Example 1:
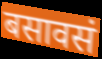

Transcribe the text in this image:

बसावसं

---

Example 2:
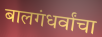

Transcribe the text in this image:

बालगंधर्वांचा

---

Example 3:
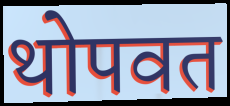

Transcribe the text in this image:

थोपवत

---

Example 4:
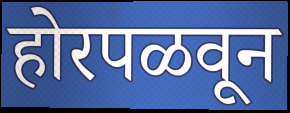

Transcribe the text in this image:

होरपळवून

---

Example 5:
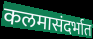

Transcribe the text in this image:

कलमासंदर्भात